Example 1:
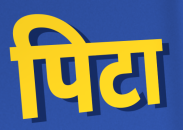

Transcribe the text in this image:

पिटा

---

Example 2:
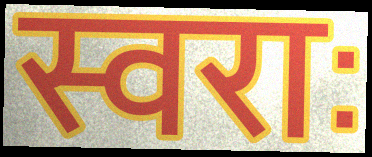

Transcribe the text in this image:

स्वराः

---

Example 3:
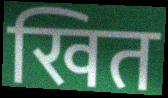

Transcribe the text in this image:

खित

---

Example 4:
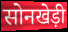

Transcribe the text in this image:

सोनखेड़ी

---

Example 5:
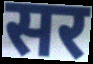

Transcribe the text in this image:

सर